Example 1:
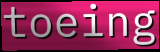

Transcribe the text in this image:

toeing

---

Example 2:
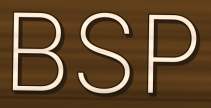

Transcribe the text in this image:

BSP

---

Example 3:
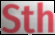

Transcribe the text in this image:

Sth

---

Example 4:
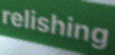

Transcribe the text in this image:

relishing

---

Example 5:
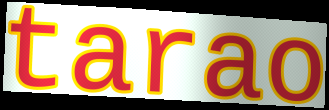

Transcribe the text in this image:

tarao